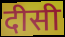
दीसी